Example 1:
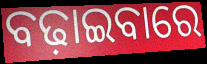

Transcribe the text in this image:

ବଢ଼ାଇବାରେ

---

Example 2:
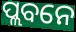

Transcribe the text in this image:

ପ୍ଲବନେ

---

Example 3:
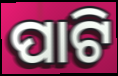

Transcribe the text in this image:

ପାଟି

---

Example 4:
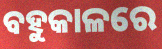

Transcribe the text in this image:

ବହୁକାଳରେ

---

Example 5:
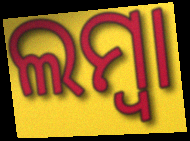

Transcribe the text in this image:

ଲମ୍ୱା